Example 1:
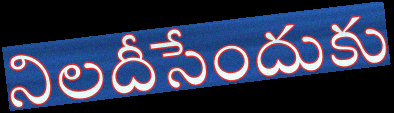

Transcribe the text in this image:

నిలదీసేందుకు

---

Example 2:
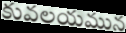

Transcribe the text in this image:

కువలయమున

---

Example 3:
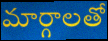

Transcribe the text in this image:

మార్గాలతో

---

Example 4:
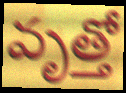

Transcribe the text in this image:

వృత్తో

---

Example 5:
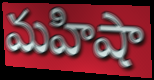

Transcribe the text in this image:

మహిషా